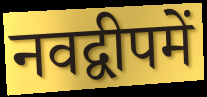
नवद्वीपमें